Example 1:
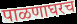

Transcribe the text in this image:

पाळणाघरच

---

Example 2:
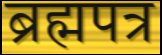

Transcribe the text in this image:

ब्रह्मपत्र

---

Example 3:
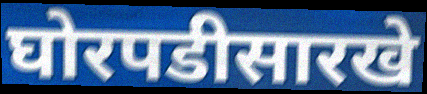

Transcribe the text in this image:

घोरपडीसारखे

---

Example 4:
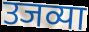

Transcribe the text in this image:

उजव्या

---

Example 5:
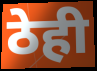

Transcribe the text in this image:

ठेही